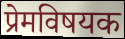
प्रेमविषयक